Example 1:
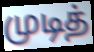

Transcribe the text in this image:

முடித்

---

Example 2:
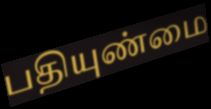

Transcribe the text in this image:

பதியுண்மை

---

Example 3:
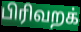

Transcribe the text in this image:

பிரிவறக்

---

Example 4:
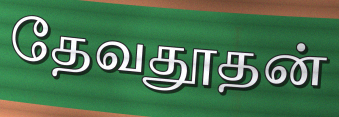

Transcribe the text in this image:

தேவதூதன்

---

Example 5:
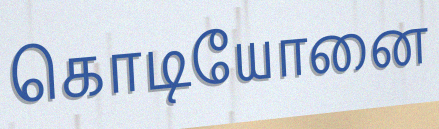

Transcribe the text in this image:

கொடியோனை